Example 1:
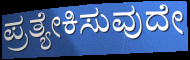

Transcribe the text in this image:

ಪ್ರತ್ಯೇಕಿಸುವುದೇ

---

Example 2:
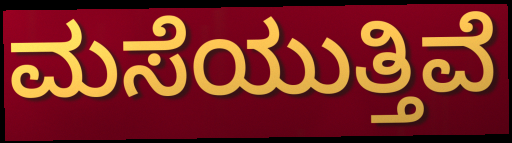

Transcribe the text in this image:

ಮಸೆಯುತ್ತಿವೆ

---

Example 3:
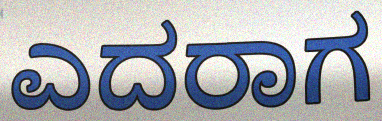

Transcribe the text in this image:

ಎದರಾಗ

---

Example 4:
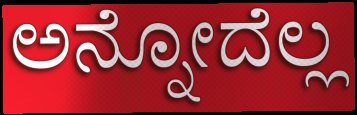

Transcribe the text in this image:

ಅನ್ನೋದೆಲ್ಲ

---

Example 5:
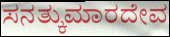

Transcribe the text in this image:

ಸನತ್ಕುಮಾರದೇವ